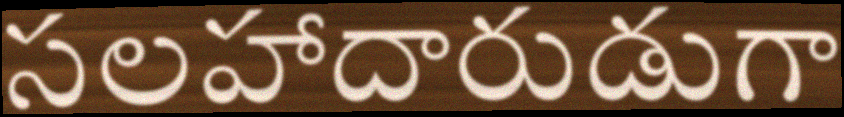
సలహాదారుడుగా